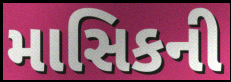
માસિકની